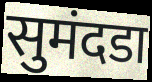
सुमंदडा